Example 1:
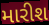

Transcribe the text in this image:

મારીશ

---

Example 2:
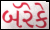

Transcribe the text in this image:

બૅરેકે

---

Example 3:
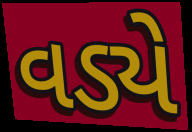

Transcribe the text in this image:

વડ્યે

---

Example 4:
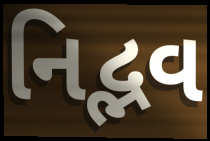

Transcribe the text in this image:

નિદ્ભવ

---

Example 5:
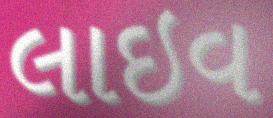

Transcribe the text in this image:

લાઇવ